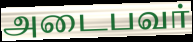
அடைபவர்